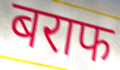
बराफ